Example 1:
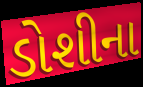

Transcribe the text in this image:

ડોશીના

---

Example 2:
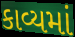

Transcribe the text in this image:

કાવ્યમાં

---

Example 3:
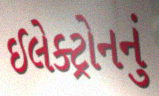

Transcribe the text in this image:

ઈલેક્ટ્રોનનું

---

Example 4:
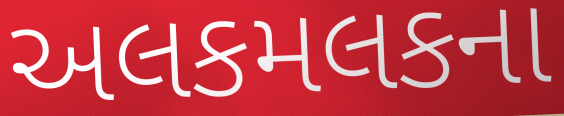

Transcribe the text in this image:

અલકમલકના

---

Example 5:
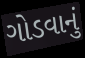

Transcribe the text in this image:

ગોડવાનું